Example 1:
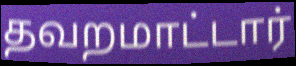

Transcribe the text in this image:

தவறமாட்டார்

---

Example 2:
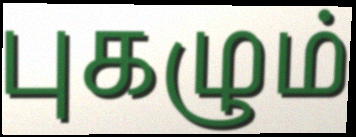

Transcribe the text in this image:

புகழும்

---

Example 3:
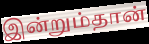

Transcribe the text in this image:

இன்றும்தான்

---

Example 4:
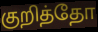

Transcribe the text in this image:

குறித்தோ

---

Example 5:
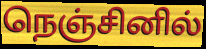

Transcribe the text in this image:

நெஞ்சினில்